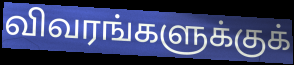
விவரங்களுக்குக்